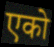
एको